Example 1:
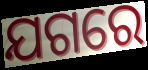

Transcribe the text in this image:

ଯଗରେ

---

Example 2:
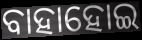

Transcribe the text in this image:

ବାହାହୋଇ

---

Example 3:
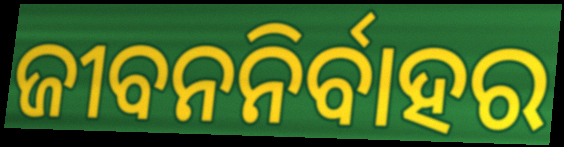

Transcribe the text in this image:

ଜୀବନନିର୍ବାହର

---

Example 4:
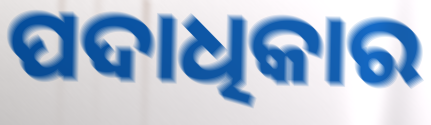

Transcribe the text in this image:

ପଦାଧିକାର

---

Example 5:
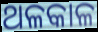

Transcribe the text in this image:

ଥଳକାଳ